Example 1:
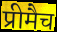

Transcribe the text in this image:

प्रीमैच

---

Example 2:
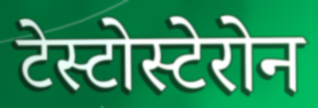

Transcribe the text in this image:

टेस्टोस्टेरोन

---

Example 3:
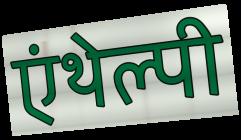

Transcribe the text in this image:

एंथेल्पी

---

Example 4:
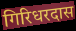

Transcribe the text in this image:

गिरिधरदास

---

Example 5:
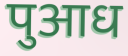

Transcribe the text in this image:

पुआध